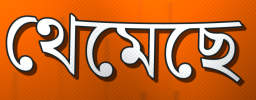
থেমেছে